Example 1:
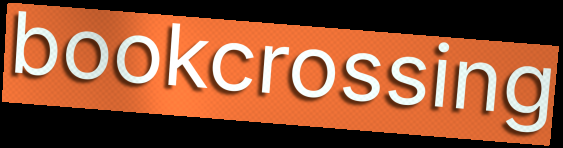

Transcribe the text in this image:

bookcrossing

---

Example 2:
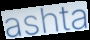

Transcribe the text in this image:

ashta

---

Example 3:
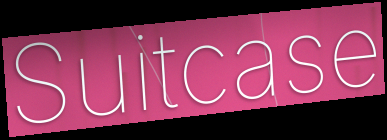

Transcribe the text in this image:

Suitcase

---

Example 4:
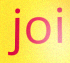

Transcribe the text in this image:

joi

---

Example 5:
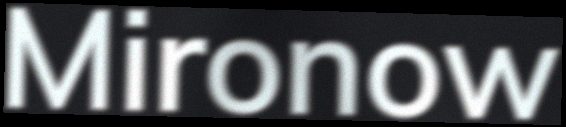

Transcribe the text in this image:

Mironow